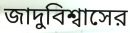
জাদুবিশ্বাসের